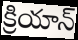
క్రియాన్